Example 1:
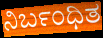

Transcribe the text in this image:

ನಿರ್ಬಂಧಿತ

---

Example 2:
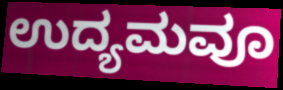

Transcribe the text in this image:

ಉದ್ಯಮವೂ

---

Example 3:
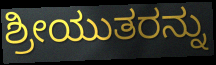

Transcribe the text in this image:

ಶ್ರೀಯುತರನ್ನು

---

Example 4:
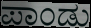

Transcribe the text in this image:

ಪಾಂಡು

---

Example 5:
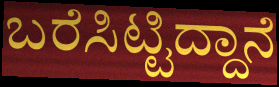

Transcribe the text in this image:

ಬರೆಸಿಟ್ಟಿದ್ದಾನೆ